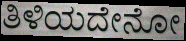
ತಿಳಿಯದೇನೋ